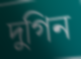
দুগিন